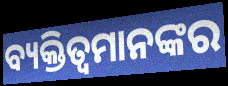
ବ୍ୟକ୍ତିତ୍ୱମାନଙ୍କର